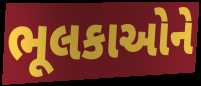
ભૂલકાઓને